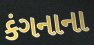
કંગનાના